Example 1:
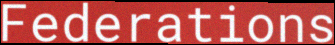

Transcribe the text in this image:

Federations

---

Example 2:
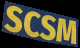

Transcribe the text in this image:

SCSM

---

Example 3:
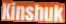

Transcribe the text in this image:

Kinshuk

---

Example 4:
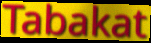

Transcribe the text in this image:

Tabakat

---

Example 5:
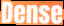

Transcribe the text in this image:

Dense